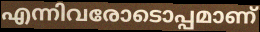
എന്നിവരോടൊപ്പമാണ്